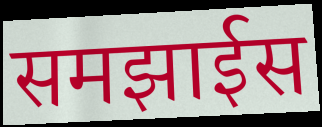
समझाईस